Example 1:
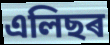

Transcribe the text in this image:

এলিছৰ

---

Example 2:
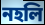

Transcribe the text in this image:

নহলি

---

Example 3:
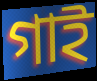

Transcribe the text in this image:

গাই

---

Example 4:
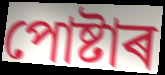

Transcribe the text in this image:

পোষ্টাৰ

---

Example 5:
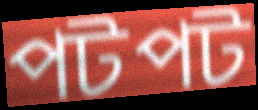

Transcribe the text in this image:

পটপট